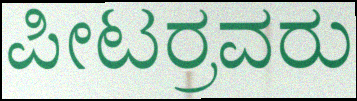
ಪೀಟರ್‍ರವರು